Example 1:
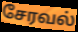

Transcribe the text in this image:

சேரவல்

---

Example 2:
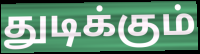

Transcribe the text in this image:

துடிக்கும்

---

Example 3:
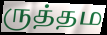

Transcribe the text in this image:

ருத்தம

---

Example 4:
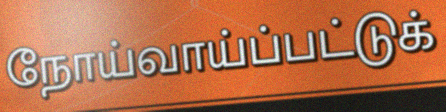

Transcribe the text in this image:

நோய்வாய்ப்பட்டுக்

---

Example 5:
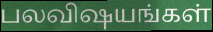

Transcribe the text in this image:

பலவிஷயங்கள்